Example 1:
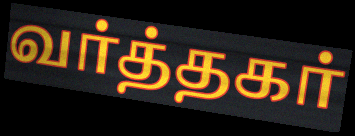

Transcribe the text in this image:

வர்த்தகர்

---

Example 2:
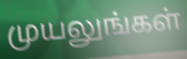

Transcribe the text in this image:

முயலுங்கள்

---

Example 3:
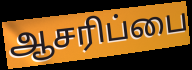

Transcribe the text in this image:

ஆசரிப்பை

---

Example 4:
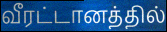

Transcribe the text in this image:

வீரட்டானத்தில்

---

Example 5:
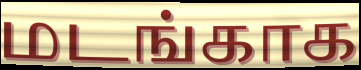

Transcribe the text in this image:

மடங்காக